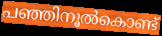
പഞ്ഞിനൂൽകൊണ്ട്